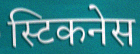
स्टिकनेस